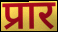
प्रार